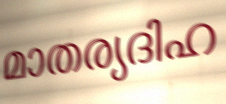
മാതര്യദിഹ